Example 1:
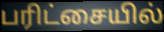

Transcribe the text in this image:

பரிட்சையில்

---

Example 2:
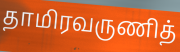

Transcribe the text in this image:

தாமிரவருணித்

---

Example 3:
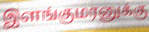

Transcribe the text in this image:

இளங்குமரனுக்கு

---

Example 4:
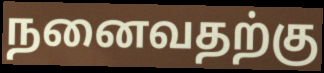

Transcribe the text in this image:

நனைவதற்கு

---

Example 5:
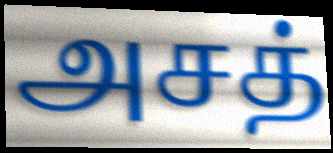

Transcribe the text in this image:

அசத்